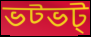
ভট্ভট্